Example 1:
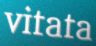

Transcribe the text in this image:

vitata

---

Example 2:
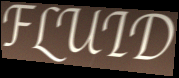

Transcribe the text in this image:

FLUID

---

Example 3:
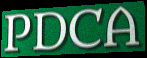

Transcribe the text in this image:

PDCA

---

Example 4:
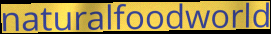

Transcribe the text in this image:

naturalfoodworld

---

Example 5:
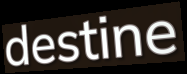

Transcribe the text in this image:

destine